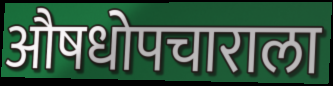
औषधोपचाराला